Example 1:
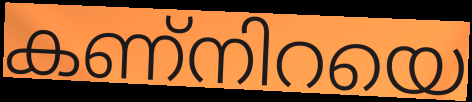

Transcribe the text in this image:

കണ്നിറയെ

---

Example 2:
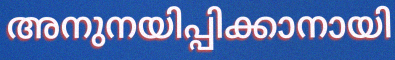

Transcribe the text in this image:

അനുനയിപ്പിക്കാനായി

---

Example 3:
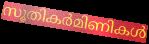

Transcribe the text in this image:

സൂതികർമിണികൾ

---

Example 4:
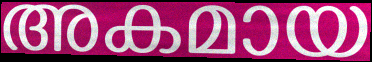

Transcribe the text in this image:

അകമായ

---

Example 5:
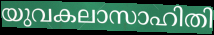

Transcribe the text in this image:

യുവകലാസാഹിതി